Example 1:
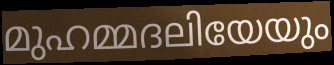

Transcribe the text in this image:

മുഹമ്മദലിയേയും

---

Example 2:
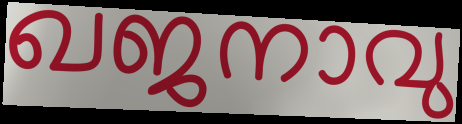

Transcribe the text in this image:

ഖജനാവു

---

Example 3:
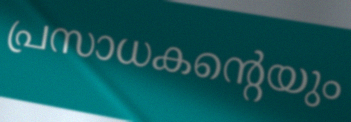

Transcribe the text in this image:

പ്രസാധകന്റെയും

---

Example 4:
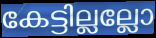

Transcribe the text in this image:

കേട്ടില്ലല്ലോ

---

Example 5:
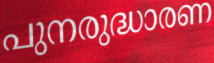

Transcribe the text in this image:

പുനരുദ്ധാരണ